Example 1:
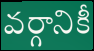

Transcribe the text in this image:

వర్గానికీ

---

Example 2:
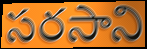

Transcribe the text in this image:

సరసాని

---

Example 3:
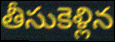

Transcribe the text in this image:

తీసుకెళ్లిన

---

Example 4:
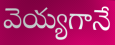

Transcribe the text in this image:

వెయ్యగానే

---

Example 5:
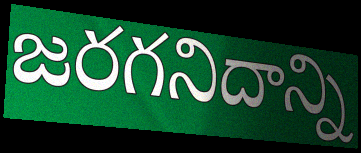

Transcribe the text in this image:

జరగనిదాన్ని